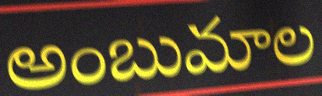
అంబుమాల